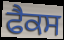
ਫੈਕਸ